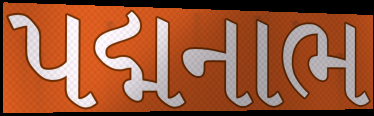
પદ્મનાભ